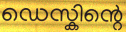
ഡെസ്കിന്റെ